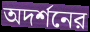
অদর্শনের